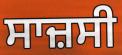
ਸਾਜ਼ਸੀ